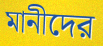
মানীদের